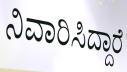
ನಿವಾರಿಸಿದ್ದಾರೆ